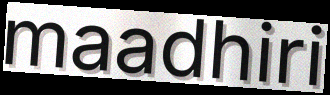
maadhiri